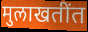
मुलाखतींत